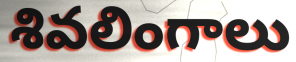
శివలింగాలు